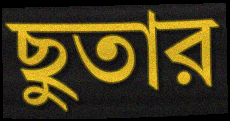
ছুতার